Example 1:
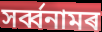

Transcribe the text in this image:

সৰ্ব্বনামৰ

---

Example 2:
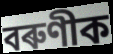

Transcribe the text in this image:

বৰুণীক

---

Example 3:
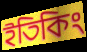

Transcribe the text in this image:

ইতিকিং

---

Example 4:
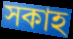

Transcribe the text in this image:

সকাহ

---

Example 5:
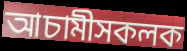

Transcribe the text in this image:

আচামীসকলক